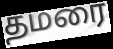
தமரை